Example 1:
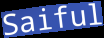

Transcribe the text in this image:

Saiful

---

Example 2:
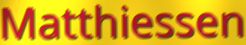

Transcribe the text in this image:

Matthiessen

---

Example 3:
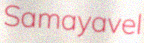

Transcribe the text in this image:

Samayavel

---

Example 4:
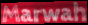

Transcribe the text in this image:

Marwah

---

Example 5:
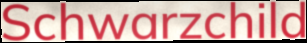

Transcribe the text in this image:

Schwarzchild